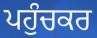
ਪਹੁੰਚਕਰ